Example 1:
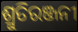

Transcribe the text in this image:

ଶ୍ରୁତିରଞ୍ଜନୀ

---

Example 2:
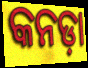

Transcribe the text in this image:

କନଡ଼ା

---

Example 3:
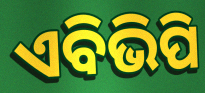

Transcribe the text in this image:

ଏବିଭିପି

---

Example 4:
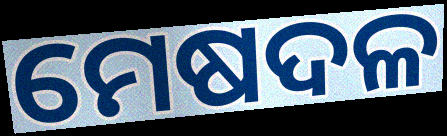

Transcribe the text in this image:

ମେଷଦଳ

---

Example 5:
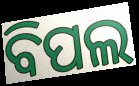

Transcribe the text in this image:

ବିପଲ